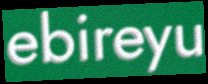
ebireyu